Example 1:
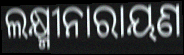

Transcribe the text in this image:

ଲକ୍ଷ୍ମୀନାରାୟଣ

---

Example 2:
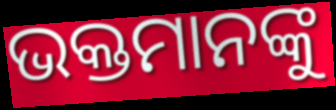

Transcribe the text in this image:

ଭକ୍ତମାନଙ୍କୁ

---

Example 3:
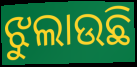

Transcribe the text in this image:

ଝୁଲାଉଛି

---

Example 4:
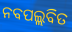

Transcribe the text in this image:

ନବପଲ୍ଲବିତ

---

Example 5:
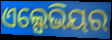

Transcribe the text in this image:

ଏଲ୍ସେଭିୟର